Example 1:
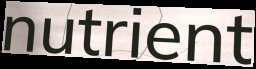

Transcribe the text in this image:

nutrient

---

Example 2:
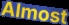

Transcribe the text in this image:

Almost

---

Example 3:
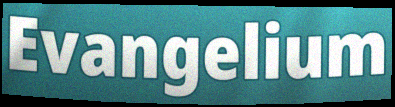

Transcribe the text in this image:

Evangelium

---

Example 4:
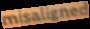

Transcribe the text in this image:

misaligned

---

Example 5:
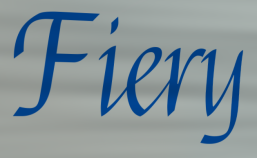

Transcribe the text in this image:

Fiery